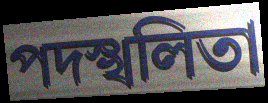
পদস্খলিতা